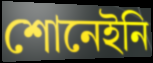
শোনেইনি